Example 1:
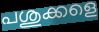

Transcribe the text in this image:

പശുക്കളെ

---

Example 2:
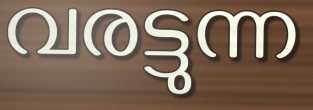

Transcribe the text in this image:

വരട്ടുന്ന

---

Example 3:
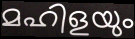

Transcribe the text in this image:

മഹിളയും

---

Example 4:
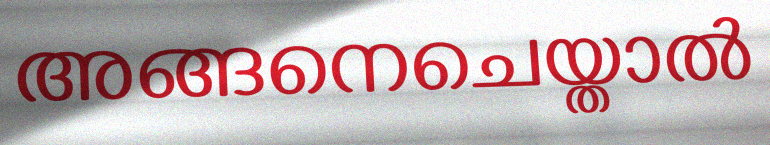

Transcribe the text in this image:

അങ്ങനെചെയ്താൽ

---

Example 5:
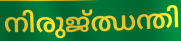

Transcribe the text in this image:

നിരുജ്ഝന്തി